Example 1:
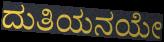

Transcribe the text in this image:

ದುತಿಯನಯೇ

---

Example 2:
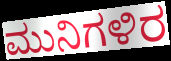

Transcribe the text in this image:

ಮುನಿಗಳಿರ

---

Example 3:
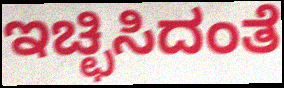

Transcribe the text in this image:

ಇಚ್ಛಿಸಿದಂತೆ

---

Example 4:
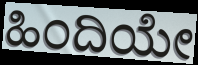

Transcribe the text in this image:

ಹಿಂದಿಯೇ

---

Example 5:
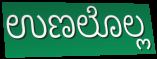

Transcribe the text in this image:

ಉಣಲೊಲ್ಲ